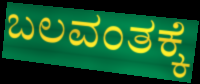
ಬಲವಂತಕ್ಕೆ